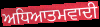
ਅਧਿਆਤਮਵਾਦੀ